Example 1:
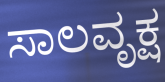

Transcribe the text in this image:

ಸಾಲವೃಕ್ಷ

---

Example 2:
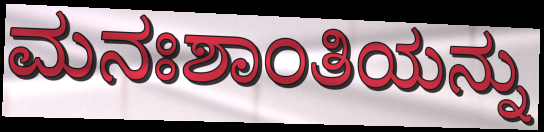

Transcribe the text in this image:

ಮನಃಶಾಂತಿಯನ್ನು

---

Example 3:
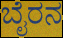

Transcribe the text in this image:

ಬೈರನ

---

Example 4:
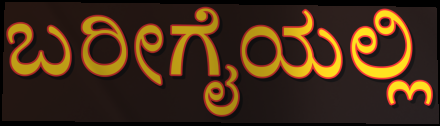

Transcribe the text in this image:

ಬರೀಗೈಯಲ್ಲಿ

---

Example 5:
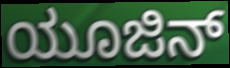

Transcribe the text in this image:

ಯೂಜಿನ್